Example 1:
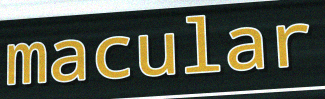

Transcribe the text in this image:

macular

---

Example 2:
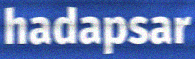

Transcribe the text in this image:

hadapsar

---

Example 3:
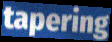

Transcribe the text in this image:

tapering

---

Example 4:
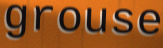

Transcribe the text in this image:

grouse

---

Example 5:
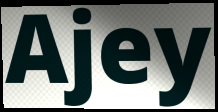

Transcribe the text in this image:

Ajey